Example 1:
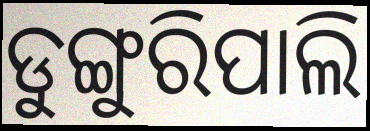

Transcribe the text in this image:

ଡୁଙ୍ଗୁରିପାଲି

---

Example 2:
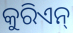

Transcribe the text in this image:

କୁରିଏନ୍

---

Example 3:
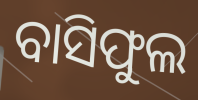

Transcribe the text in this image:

ବାସିଫୁଲ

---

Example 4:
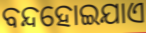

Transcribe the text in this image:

ବନ୍ଦହୋଇଯାଏ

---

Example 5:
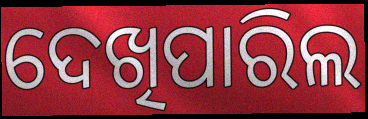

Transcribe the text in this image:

ଦେଖିପାରିଲ